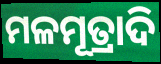
ମଳମୂତ୍ରାଦି